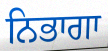
ਨਿਭਾਗਾ